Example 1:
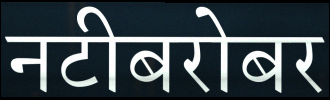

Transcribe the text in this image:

नटीबरोबर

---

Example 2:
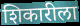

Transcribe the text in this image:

शिकारीला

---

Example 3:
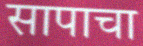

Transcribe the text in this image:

सापाचा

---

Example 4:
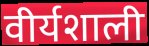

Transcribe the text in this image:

वीर्यशाली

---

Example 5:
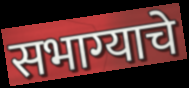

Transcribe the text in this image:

सभाग्याचे